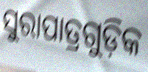
ସୁରାପାତ୍ରଗୁଡ଼ିକ